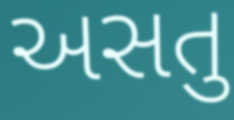
અસતુ